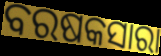
ବରଷକସାରା